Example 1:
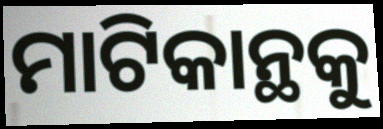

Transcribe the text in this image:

ମାଟିକାନ୍ଥକୁ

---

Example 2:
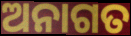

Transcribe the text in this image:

ଅନାଗତ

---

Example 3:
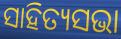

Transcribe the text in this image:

ସାହିତ୍ୟସଭା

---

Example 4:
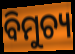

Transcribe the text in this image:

ବିମୁଚ୍ୟ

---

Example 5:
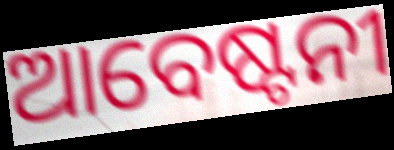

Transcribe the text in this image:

ଆବେଷ୍ଟନୀ